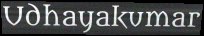
Udhayakumar